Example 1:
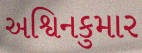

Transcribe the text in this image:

અશ્વિનકુમાર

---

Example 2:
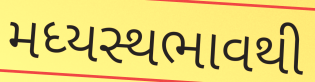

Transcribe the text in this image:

મધ્યસ્થભાવથી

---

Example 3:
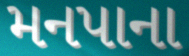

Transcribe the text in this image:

મનપાના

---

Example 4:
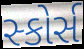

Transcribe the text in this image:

સ્કોર્સ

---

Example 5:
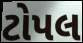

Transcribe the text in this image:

ટોપલ